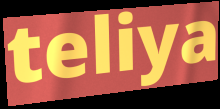
teliya